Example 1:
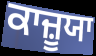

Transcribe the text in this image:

ਕਾਜ਼ੂਯਾ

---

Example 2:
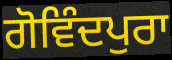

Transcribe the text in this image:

ਗੋਵਿੰਦਪੁਰਾ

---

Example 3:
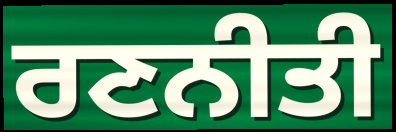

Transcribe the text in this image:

ਰਣਨੀਤੀ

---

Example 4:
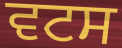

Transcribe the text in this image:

ਵਟਸ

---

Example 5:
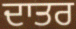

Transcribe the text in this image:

ਦਾਤਰ